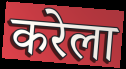
करेला